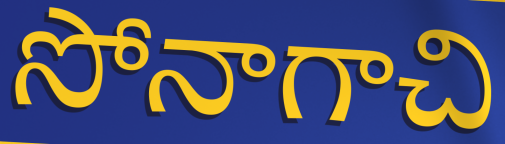
సోనాగాచి